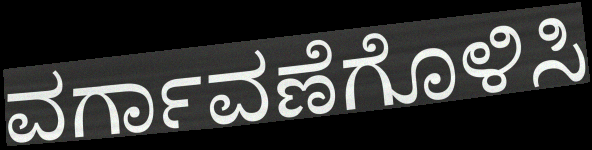
ವರ್ಗಾವಣೆಗೊಳಿಸಿ